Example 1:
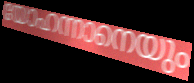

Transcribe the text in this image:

യോഹന്നാനെയും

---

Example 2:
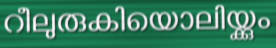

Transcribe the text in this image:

റീലുരുകിയൊലിയ്ക്കും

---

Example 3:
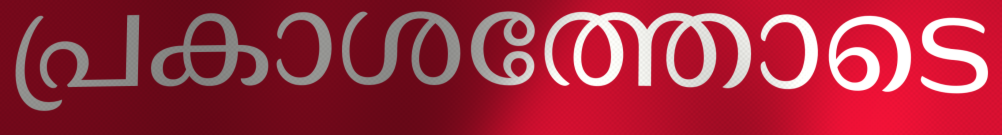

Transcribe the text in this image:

പ്രകാശത്തോടെ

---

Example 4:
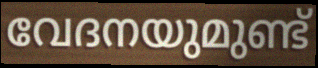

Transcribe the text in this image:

വേദനയുമുണ്ട്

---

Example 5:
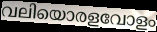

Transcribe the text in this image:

വലിയൊരളവോളം